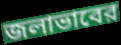
জলাভাবের